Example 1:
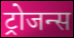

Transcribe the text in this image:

ट्रोजन्स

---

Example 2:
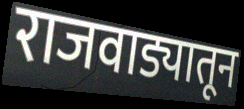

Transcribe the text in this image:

राजवाड्यातून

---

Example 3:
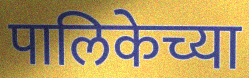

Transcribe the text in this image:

पालिकेच्या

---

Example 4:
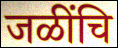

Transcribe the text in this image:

जळींचि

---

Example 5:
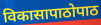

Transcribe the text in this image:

विकासापाठोपाठ